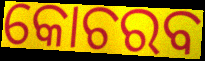
କୋଚରବ